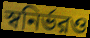
স্বনির্ভরও